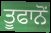
ਤੂਫਾਨੋਂ